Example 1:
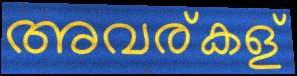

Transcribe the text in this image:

അവര്കള്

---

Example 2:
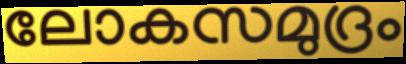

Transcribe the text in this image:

ലോകസമുദ്രം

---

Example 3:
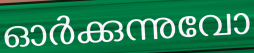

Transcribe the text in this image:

ഓർക്കുന്നുവോ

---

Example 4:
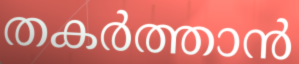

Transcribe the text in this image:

തകർത്താൻ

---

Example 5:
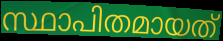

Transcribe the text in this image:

സ്ഥാപിതമായത്